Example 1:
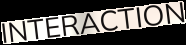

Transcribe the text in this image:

INTERACTION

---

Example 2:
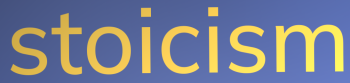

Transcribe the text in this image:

stoicism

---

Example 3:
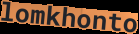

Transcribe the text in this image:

lomkhonto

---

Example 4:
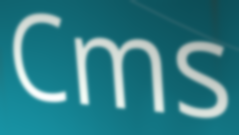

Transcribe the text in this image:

Cms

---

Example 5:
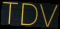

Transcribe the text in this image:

TDV